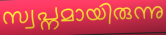
സ്വപ്നമായിരുന്നു